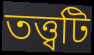
তত্ত্বটি